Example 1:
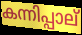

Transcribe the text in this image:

കന്നിപ്പാല്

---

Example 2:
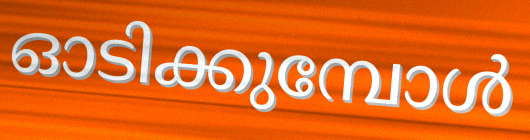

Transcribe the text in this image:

ഓടിക്കുമ്പോൾ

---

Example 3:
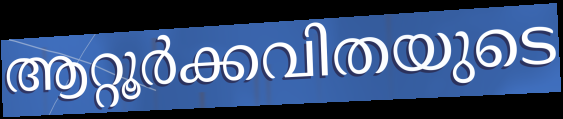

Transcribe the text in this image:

ആറ്റൂർക്കവിതയുടെ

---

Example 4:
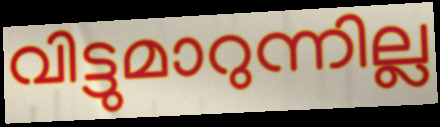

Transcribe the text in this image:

വിട്ടുമാറുന്നില്ല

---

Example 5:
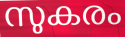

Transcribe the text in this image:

സുകരം